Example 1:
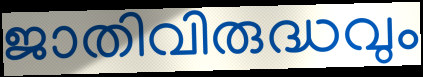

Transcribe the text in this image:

ജാതിവിരുദ്ധവും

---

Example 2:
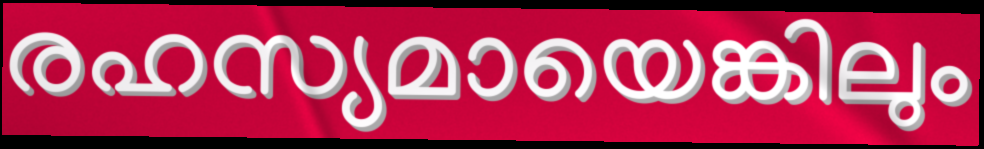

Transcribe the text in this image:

രഹസ്യമായെങ്കിലും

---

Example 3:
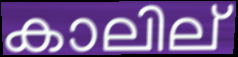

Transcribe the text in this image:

കാലില്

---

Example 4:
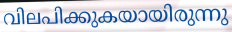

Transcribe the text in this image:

വിലപിക്കുകയായിരുന്നു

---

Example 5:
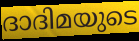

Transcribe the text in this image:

ദാദിമയുടെ